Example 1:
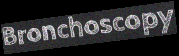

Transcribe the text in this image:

Bronchoscopy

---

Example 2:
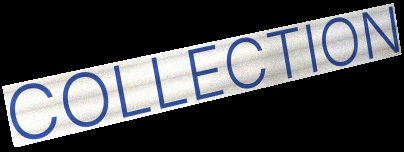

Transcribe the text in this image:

COLLECTION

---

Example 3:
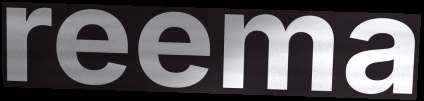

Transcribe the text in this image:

reema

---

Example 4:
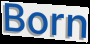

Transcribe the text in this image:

Born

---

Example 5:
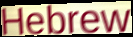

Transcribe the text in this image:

Hebrew